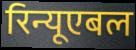
रिन्यूएबल